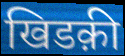
खिडक़ी